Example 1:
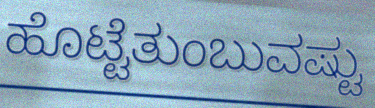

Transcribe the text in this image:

ಹೊಟ್ಟೆತುಂಬುವಷ್ಟು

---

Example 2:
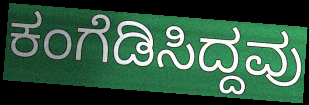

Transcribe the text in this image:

ಕಂಗೆಡಿಸಿದ್ದವು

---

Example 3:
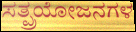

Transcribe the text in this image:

ಸತ್ಪ್ರಯೋಜನಗಳ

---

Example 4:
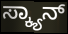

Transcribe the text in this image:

ಸ್ಕ್ಯಾನ್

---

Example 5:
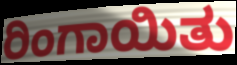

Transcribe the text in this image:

ರಿಂಗಾಯಿತು